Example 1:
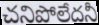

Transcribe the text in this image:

చనిపోలేదనీ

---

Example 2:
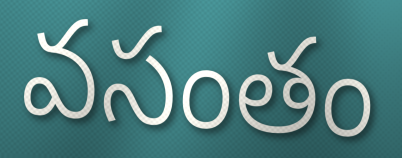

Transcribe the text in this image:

వసంతం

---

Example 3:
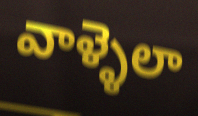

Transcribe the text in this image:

వాళ్ళెలా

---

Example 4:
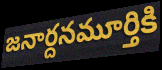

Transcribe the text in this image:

జనార్దనమూర్తికి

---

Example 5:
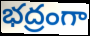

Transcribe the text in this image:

భద్రంగా